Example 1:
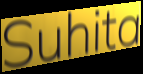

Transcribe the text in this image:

Suhita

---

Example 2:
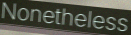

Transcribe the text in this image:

Nonetheless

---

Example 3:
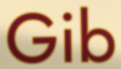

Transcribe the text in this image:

Gib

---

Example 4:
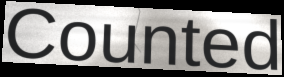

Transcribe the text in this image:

Counted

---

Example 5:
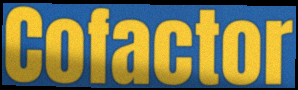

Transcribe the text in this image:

Cofactor